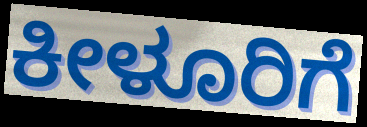
ಕೀಳೂರಿಗೆ